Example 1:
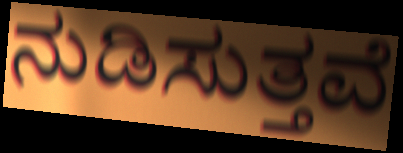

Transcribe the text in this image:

ನುಡಿಸುತ್ತವೆ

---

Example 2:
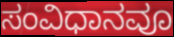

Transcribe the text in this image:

ಸಂವಿಧಾನವೂ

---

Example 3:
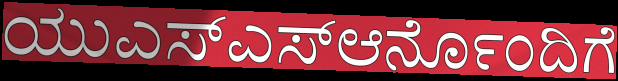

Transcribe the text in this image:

ಯುಎಸ್ಎಸ್ಆರ್ನೊಂದಿಗೆ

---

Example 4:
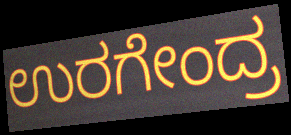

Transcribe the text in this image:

ಉರಗೇಂದ್ರ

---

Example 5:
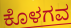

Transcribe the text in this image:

ಕೊಳಗವ